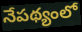
నేపథ్యంలో